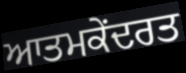
ਆਤਮਕੇਂਦਰਤ